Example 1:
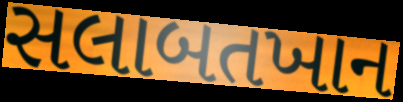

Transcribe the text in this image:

સલાબતખાન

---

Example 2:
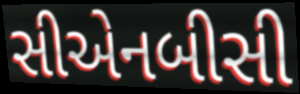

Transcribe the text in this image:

સીએનબીસી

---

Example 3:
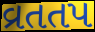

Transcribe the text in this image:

વ્રતતપ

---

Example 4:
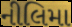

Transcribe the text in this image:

નીલિમા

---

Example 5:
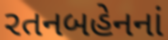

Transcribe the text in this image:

રતનબહેનનાં